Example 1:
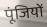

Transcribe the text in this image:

पूंजियों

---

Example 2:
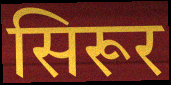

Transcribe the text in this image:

सिरूर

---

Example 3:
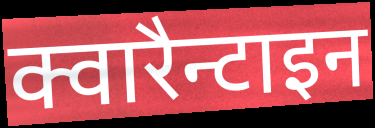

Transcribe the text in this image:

क्वारैन्टाइन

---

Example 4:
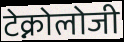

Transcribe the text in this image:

टेक्नोलोजी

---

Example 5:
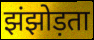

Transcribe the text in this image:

झंझोड़ता